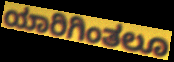
ಯಾರಿಗಿಂತಲೂ